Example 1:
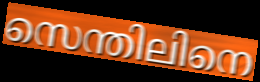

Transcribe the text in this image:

സെന്തിലിനെ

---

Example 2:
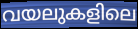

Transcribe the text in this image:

വയലുകളിലെ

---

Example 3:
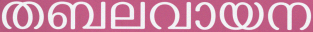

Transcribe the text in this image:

തബലവായന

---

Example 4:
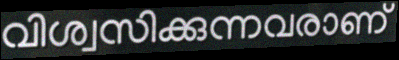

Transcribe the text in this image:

വിശ്വസിക്കുന്നവരാണ്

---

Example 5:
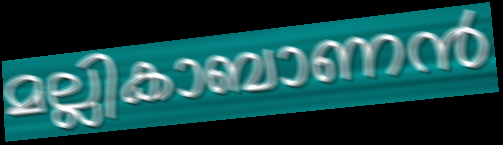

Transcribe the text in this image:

മല്ലികാബാണൻ